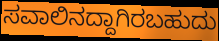
ಸವಾಲಿನದ್ದಾಗಿರಬಹುದು